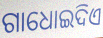
ଗାଧୋଇଦିଏ